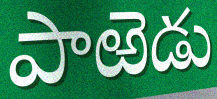
పాఱెడు